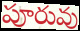
పూరువు